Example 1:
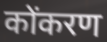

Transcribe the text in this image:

कोंकरण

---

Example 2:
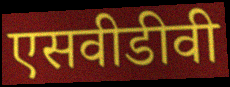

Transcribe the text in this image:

एसवीडीवी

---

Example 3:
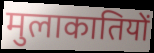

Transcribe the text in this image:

मुलाकातियों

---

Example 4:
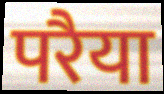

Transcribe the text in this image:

परैया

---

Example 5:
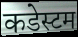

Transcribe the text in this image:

कडेस्टम